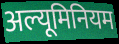
अल्यूमिनियम